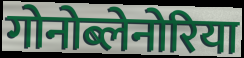
गोनोब्लेनोरिया